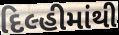
દિલ્હીમાંથી